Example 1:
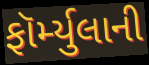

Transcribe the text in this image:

ફૉર્મ્યુલાની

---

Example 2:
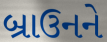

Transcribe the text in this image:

બ્રાઉનને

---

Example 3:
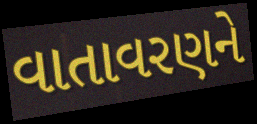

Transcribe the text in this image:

વાતાવરણને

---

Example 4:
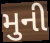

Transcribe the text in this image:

મુની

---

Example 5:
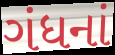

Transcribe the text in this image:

ગંધનાં